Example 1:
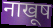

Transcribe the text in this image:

नाखूष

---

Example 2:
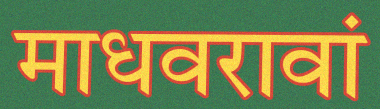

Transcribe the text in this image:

माधवरावां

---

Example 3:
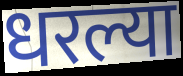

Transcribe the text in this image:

धरल्या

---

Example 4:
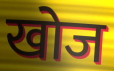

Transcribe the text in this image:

खोज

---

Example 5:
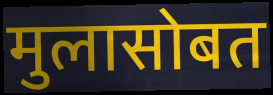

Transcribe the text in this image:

मुलासोबत